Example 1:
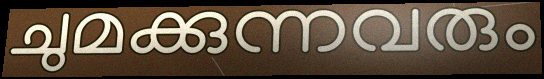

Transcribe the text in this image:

ചുമക്കുന്നവരും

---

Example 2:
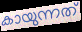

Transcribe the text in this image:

കായുന്നത്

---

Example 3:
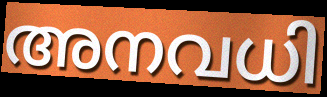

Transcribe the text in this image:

അനവധി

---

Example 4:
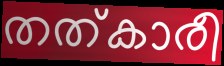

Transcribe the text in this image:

തത്കാരീ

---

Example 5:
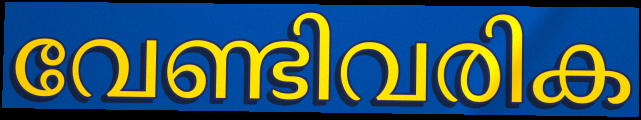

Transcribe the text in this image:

വേണ്ടിവരിക